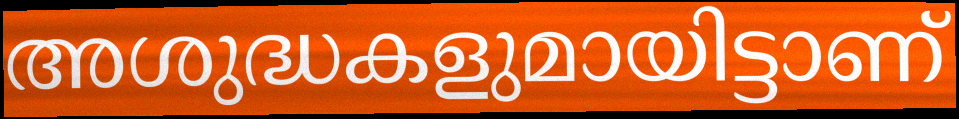
അശുദ്ധകളുമായിട്ടാണ്